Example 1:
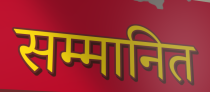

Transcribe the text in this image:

सम्मानित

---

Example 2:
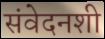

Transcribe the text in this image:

संवेदनशी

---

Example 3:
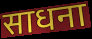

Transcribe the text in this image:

साधना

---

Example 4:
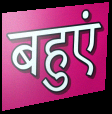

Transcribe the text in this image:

बहुएं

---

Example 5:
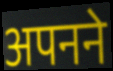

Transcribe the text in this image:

अपनने